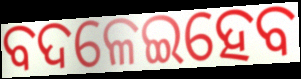
ବଦଳେଇହେବ